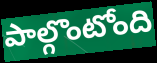
పాల్గొంటోంది